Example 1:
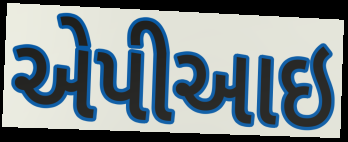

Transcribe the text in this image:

એપીઆઇ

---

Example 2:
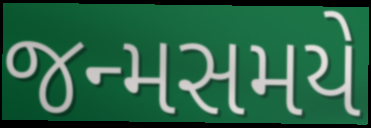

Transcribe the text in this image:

જન્મસમયે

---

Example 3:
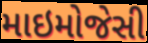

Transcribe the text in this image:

માઇમોજેસી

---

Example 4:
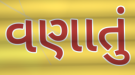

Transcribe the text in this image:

વણાતું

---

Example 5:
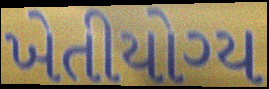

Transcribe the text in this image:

ખેતીયોગ્ય